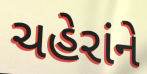
ચહેરાંને